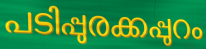
പടിപ്പുരക്കപ്പുറം